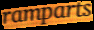
ramparts